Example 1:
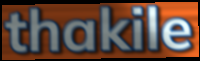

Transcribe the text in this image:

thakile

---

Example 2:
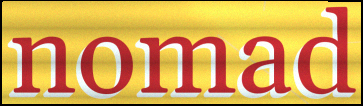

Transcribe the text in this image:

nomad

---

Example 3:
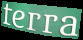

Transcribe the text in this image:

terra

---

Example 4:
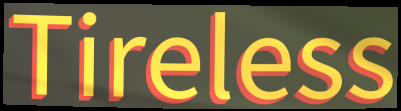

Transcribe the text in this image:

Tireless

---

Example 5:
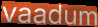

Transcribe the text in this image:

vaadum